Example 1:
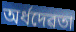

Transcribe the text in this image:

অৰ্ধদেৱতা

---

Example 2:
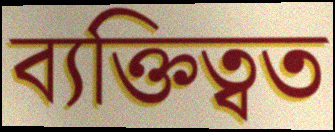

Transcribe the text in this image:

ব্যক্তিত্বত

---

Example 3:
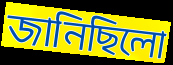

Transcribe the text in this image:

জানিছিলো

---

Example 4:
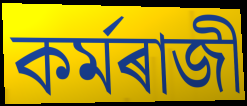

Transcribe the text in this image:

কৰ্মৰাজী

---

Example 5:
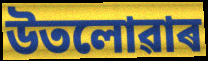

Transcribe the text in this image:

উতলোৱাৰ